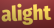
alight